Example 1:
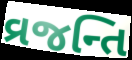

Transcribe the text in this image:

વ્રજન્તિ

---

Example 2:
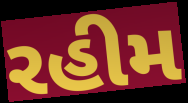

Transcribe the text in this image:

રહીમ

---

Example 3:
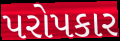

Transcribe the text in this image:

પરોપકાર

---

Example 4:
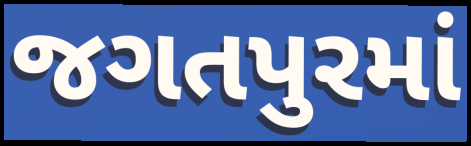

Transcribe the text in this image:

જગતપુરમાં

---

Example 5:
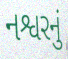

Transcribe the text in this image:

નશ્વરનું